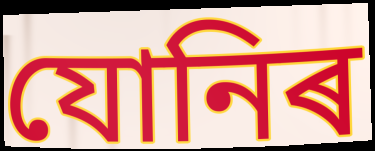
যোনিৰ